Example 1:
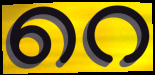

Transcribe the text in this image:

റെ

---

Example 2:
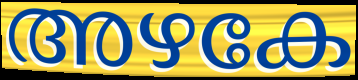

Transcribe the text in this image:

അഴകേ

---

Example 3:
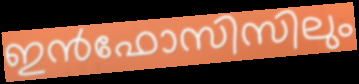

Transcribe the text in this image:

ഇൻഫോസിസിലും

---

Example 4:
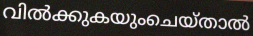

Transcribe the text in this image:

വിൽക്കുകയുംചെയ്താൽ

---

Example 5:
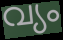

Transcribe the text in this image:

വ്യം